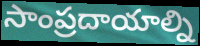
సాంప్రదాయాల్ని